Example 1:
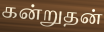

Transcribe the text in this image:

கன்றுதன்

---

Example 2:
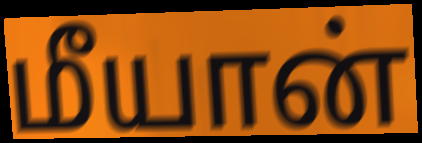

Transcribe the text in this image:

மீயான்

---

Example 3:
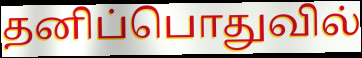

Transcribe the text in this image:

தனிப்பொதுவில்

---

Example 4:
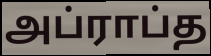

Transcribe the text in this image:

அப்ராப்த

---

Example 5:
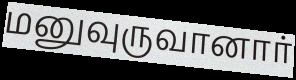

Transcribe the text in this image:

மனுவுருவானார்